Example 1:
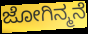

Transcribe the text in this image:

ಜೋಗಿನ್ಮನೆ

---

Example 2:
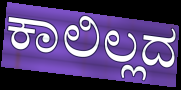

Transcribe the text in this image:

ಕಾಲಿಲ್ಲದ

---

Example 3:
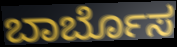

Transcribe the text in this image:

ಬಾರ್ಬೊಸ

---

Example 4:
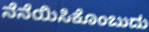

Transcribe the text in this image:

ನೆನೆಯಿಸಿಕೊಂಬುದು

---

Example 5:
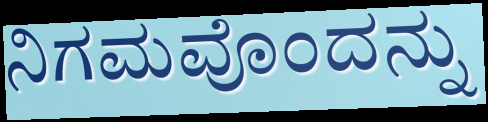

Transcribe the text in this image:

ನಿಗಮವೊಂದನ್ನು